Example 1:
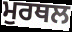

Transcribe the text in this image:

ਮੁਰਥਲ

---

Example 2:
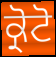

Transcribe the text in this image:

ਕ੍ਰੋਟੋ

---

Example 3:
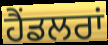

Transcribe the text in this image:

ਹੈਂਡਲਰਾਂ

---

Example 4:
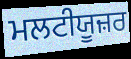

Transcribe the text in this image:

ਮਲਟੀਯੂਜ਼ਰ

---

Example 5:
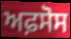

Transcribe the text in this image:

ਅਫ਼ਸੋਸ